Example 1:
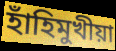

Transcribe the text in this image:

হাঁহিমুখীয়া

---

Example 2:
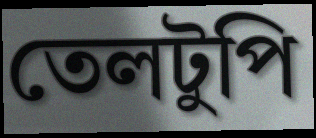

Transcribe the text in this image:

তেলটুপি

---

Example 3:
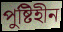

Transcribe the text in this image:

পুষ্টিহীন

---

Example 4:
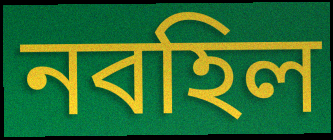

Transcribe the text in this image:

নবহিল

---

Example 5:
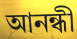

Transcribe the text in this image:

আনন্ধী